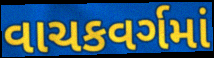
વાચકવર્ગમાં